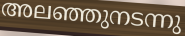
അലഞ്ഞുനടന്നു